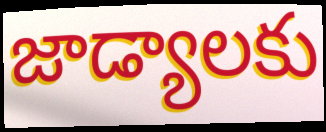
జాడ్యాలకు